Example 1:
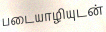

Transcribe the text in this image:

படையாழியுடன்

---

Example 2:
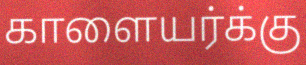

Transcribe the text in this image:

காளையர்க்கு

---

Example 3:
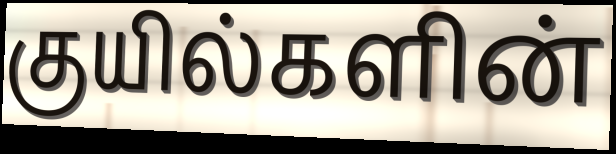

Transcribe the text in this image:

குயில்களின்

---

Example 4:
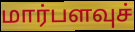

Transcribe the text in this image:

மார்பளவுச்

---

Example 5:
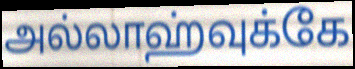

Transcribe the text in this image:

அல்லாஹ்வுக்கே